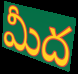
మీద